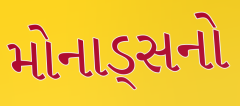
મોનાડ્સનો